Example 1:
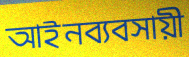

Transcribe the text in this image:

আইনব্যবসায়ী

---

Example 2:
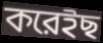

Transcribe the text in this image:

করেইছ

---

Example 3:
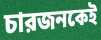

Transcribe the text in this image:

চারজনকেই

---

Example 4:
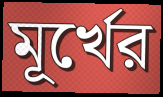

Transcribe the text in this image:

মূর্খের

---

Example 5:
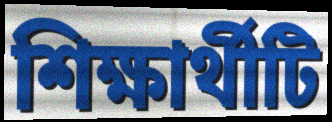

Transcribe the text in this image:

শিক্ষার্থীটি